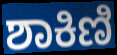
ಶಾಕಿಣಿ